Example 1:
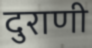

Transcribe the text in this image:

दुराणी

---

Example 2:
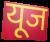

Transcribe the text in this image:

यूज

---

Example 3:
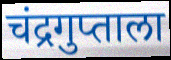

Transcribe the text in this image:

चंद्रगुप्ताला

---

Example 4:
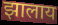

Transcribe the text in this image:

झालाय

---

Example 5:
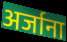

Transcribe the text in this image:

अर्जाना